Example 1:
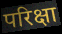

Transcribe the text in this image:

परिक्षा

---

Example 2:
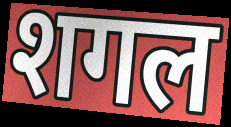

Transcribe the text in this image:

शगल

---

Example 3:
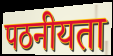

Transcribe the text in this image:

पठनीयता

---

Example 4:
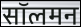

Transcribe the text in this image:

सॉलमन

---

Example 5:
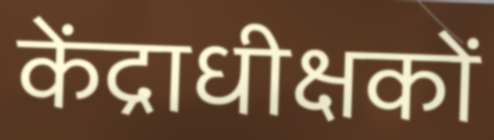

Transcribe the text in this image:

केंद्राधीक्षकों